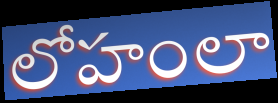
లోహంలా